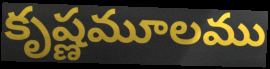
కృష్ణమూలము